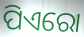
ପିଏରୋ